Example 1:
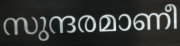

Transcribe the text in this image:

സുന്ദരമാണീ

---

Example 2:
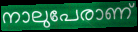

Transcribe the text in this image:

നാലുപേരാണ്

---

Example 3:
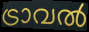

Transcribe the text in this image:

ട്രാവൽ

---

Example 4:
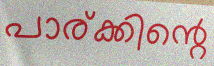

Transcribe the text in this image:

പാര്ക്കിന്റെ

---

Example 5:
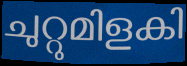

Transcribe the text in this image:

ചുറ്റുമിളകി